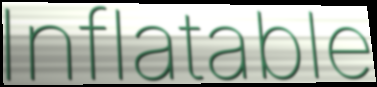
Inflatable